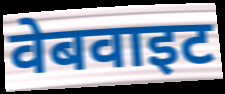
वेबवाइट